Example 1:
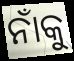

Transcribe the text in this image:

ନାଁକୁ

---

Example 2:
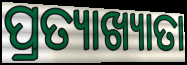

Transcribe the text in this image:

ପ୍ରତ୍ୟାଖ୍ୟାତା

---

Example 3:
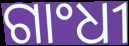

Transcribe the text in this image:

ଗାଂଧୀ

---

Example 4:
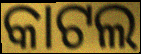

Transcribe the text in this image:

କାଟଲ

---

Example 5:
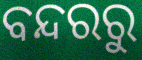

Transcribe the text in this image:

ବନ୍ଦରରୁ